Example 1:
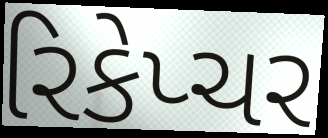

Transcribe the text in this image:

રિકેપ્ચર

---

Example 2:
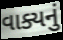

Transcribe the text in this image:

વાક્યનું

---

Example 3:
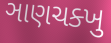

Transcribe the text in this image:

ઞાણચક્ખુ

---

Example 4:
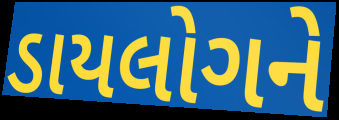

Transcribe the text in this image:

ડાયલોગને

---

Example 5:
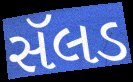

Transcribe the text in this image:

સૅલડ